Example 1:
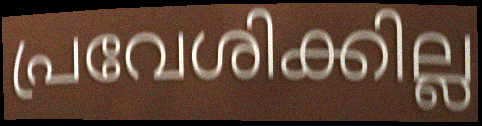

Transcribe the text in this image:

പ്രവേശിക്കില്ല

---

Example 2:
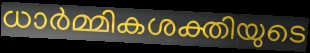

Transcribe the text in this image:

ധാർമ്മികശക്തിയുടെ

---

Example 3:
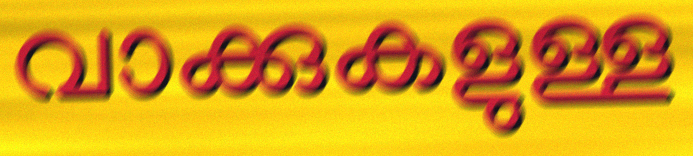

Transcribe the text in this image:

വാക്കുകളുള്ള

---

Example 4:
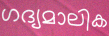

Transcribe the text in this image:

ഗദ്യമാലിക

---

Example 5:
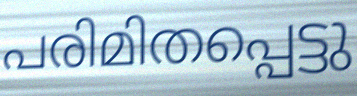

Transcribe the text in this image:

പരിമിതപ്പെട്ടു